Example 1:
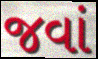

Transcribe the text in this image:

જવાં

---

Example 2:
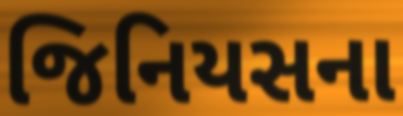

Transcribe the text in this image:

જિનિયસના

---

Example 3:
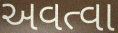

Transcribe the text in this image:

અવત્વા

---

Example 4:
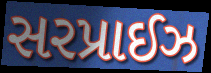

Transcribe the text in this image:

સરપ્રાઈઝ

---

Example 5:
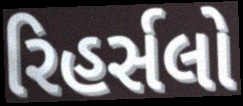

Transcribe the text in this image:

રિહર્સલો